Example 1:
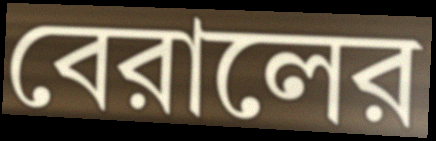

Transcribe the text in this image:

বেরালের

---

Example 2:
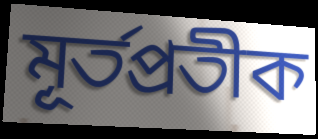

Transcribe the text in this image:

মূর্তপ্রতীক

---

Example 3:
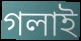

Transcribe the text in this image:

গলাই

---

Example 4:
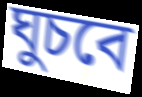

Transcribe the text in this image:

ঘুচবে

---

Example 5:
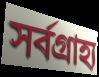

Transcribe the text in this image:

সর্বগ্রাহ্য